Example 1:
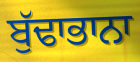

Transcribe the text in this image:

ਬੁੱਢਾਭਾਨਾ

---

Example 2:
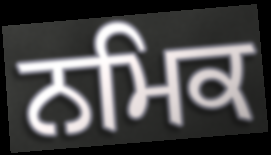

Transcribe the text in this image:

ਨਮਿਕ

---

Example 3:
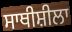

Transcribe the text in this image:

ਸਾਥੀਸ਼ੀਲਾ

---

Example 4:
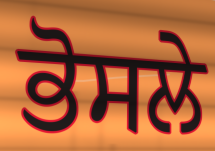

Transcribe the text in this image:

ਭੋਸਲੇ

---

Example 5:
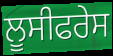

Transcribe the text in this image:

ਲੂਸੀਫਰੇਸ